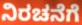
ನಿರಚನೆಗೆ